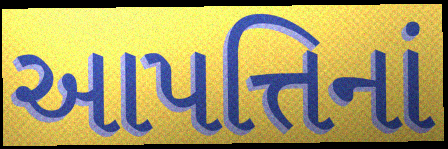
આપત્તિનાં